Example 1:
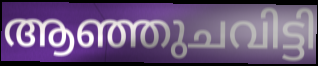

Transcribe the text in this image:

ആഞ്ഞുചവിട്ടി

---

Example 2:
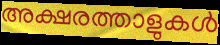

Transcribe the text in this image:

അക്ഷരത്താളുകൾ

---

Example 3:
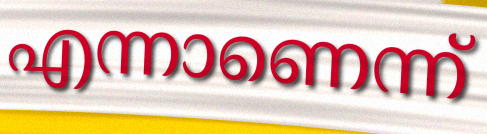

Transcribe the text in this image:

എന്നാണെന്ന്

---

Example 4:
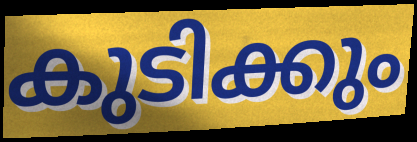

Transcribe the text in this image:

കുടിക്കും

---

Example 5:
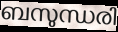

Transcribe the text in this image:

ബസുന്ധരി